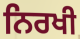
ਨਿਰਖੀ